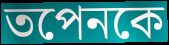
তপেনকে